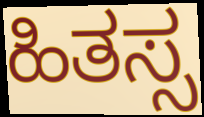
ಹಿತಸ್ಸ